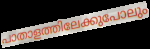
പാതാളത്തിലേക്കുപോലും